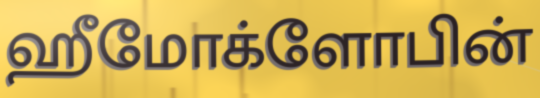
ஹீமோக்ளோபின்